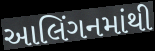
આલિંગનમાંથી